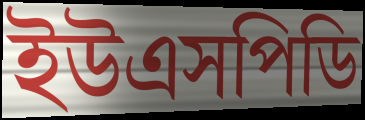
ইউএসপিডি